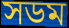
সডম